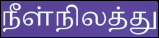
நீள்நிலத்து